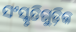
ସଂସ୍କୃତିଗୁଡ଼ିକ